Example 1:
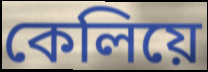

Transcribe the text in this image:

কেলিয়ে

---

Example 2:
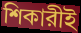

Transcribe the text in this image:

শিকারীই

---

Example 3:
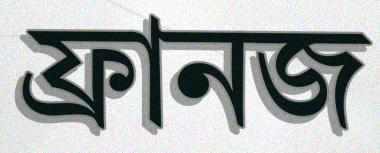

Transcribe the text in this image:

ফ্রানজ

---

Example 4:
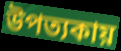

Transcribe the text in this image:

উপত্যকায়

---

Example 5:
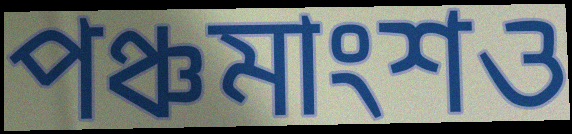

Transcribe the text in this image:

পঞ্চমাংশও